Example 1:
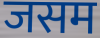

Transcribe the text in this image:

जसम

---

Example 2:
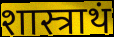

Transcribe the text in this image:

शास्त्राथं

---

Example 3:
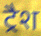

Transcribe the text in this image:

ट्रैश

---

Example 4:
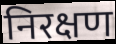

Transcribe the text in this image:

निरक्षण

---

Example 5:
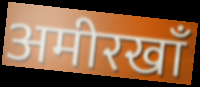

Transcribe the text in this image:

अमीरखाँ